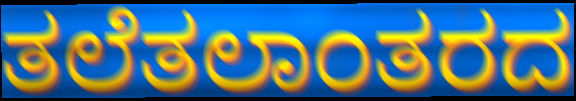
ತಲೆತಲಾಂತರದ